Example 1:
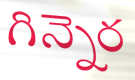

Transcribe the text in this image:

గిన్నెర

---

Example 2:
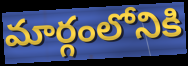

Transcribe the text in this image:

మార్గంలోనికి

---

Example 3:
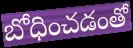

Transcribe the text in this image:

బోధించడంతో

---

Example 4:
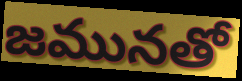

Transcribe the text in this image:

జమునతో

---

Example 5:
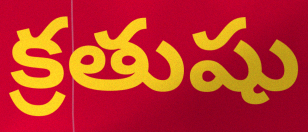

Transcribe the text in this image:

క్రతుషు